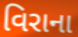
વિરાના